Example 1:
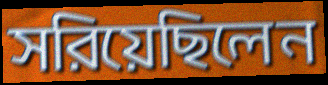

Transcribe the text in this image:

সরিয়েছিলেন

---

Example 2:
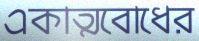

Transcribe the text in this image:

একাত্মবোধের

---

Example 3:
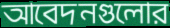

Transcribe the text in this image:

আবেদনগুলোর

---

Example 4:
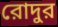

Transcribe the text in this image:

রোদুর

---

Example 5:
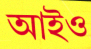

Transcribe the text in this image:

আইও